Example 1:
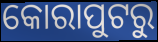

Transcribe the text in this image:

କୋରାପୁଟରୁ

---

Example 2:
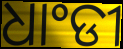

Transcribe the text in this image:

ଧାଂଡୀ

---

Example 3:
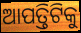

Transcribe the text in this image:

ଆପତ୍ତିଟିକୁ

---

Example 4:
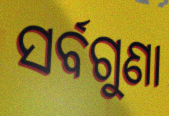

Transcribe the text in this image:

ସର୍ବଗୁଣା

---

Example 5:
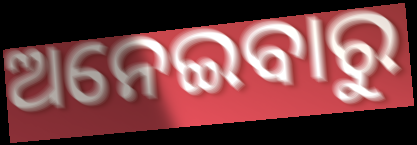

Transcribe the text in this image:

ଅନେଇବାରୁ